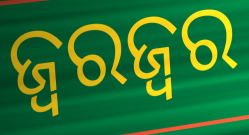
ଜ୍ୱରଜ୍ୱର